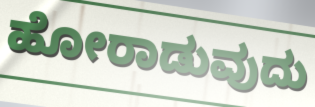
ಹೋರಾಡುವುದು